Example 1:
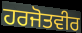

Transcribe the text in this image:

ਹਰਜੋਤਵੀਰ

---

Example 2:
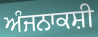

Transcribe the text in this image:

ਅੰਜਨਾਕਸ਼ੀ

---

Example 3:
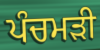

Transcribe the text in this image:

ਪੰਚਮੜੀ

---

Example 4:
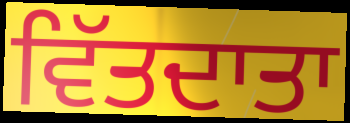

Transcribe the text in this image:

ਵਿੱਤਦਾਤਾ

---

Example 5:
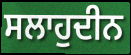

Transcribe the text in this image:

ਸਲਾਹੁਦੀਨ